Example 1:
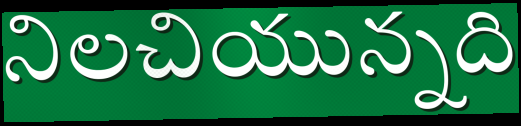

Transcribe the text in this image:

నిలచియున్నది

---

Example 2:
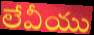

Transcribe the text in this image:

లేవీయు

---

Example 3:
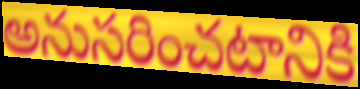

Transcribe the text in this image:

అనుసరించటానికి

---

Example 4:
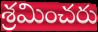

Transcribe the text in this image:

శ్రమించరు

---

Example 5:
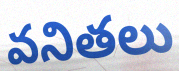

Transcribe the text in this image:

వనితలు